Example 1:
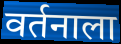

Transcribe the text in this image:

वर्तनाला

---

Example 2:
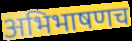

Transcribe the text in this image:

अभिभाषणच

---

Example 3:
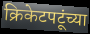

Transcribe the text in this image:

क्रिकेटपटूंच्या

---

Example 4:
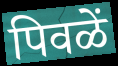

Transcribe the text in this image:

पिवळें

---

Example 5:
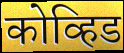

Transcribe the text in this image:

कोव्हिड